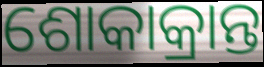
ଶୋକାକ୍ରାନ୍ତ